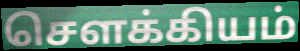
சௌக்கியம்